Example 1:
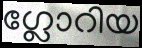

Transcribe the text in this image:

ഗ്ലോറിയ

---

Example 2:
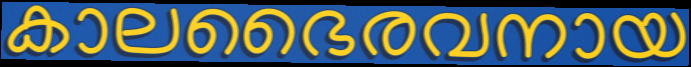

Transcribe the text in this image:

കാലഭൈരവനായ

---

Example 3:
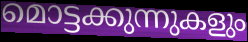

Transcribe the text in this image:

മൊട്ടക്കുന്നുകളും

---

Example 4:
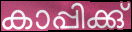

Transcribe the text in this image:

കാപ്പിക്കു്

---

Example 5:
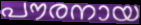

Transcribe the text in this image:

പൗരനായ